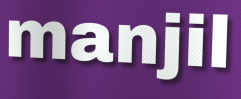
manjil